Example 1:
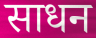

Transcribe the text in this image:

साधन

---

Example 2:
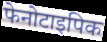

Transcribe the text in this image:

फेनोटाइपिक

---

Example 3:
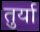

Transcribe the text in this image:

तुर्या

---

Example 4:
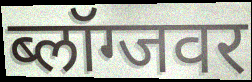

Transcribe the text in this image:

ब्लॉग्जवर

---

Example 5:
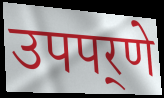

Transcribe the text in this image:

उपपर्णे